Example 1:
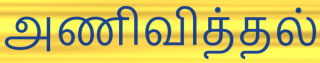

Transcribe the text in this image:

அணிவித்தல்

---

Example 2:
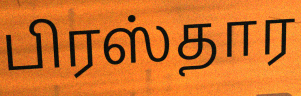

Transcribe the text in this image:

பிரஸ்தார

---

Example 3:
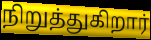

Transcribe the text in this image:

நிறுத்துகிறார்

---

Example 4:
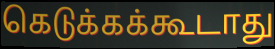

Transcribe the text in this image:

கெடுக்கக்கூடாது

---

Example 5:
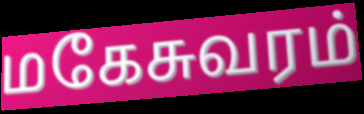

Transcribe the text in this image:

மகேசுவரம்